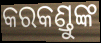
କରକଣ୍ଡୁଙ୍କ